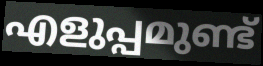
എളുപ്പമുണ്ട്